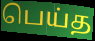
பெய்த